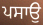
ਪਸਾਉ